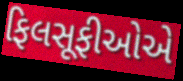
ફિલસૂફીઓએ